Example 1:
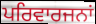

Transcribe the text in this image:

ਪਰਿਵਾਰਜਨਾਂ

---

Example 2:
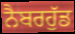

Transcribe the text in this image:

ਨੈਬਰਹੁੱਡ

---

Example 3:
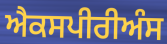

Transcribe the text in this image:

ਐਕਸਪੀਰੀਅੰਸ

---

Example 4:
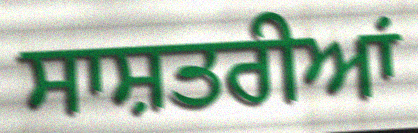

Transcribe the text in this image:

ਸਾਸ਼ਤਰੀਆਂ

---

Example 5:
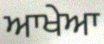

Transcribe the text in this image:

ਆਖੇਆ